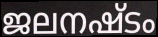
ജലനഷ്ടം